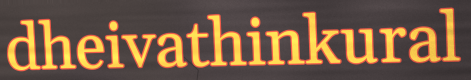
dheivathinkural